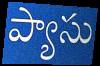
ప్యాసు